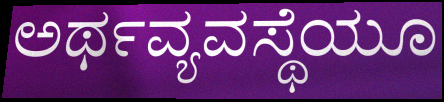
ಅರ್ಥವ್ಯವಸ್ಥೆಯೂ